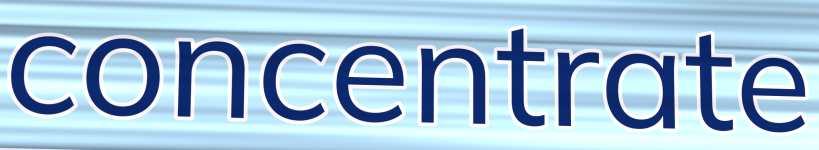
concentrate